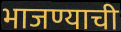
भाजण्याची